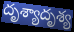
దృశ్యాదృశ్య